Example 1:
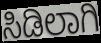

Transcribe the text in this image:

ಸಿಡಿಲಾಗಿ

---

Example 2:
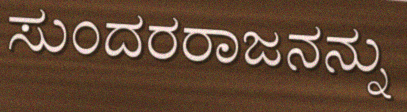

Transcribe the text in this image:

ಸುಂದರರಾಜನನ್ನು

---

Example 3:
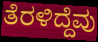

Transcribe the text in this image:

ತೆರಳಿದ್ದೆವು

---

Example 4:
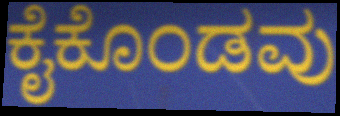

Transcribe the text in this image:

ಕೈಕೊಂಡವು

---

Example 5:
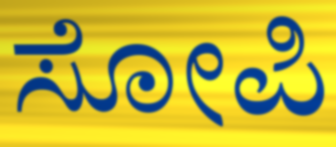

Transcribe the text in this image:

ಸೋಪಿ